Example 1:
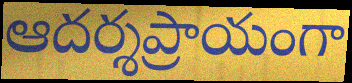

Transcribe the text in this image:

ఆదర్శప్రాయంగా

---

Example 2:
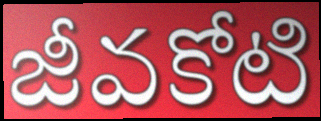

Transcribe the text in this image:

జీవకోటి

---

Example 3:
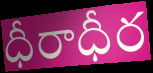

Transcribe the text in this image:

ధీరాధీర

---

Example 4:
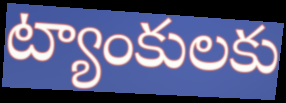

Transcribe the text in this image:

ట్యాంకులకు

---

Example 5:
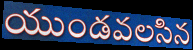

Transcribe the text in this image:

యుండవలసిన